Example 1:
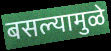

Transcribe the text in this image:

बसल्यामुळे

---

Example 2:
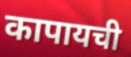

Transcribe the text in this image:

कापायची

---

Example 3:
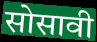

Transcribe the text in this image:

सोसावी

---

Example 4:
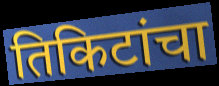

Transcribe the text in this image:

तिकिटांचा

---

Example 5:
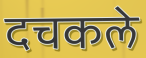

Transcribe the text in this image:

दचकले